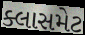
ક્લાસમેટ